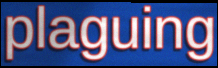
plaguing